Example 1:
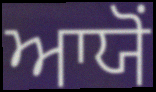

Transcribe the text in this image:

ਆਯੋਂ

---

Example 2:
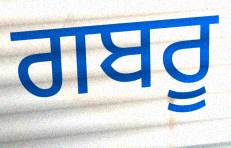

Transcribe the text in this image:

ਗਬਰੂ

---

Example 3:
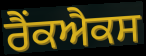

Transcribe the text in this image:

ਰੈਂਕਐਕਸ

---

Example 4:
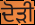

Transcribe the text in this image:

ਦੋੜੀ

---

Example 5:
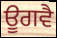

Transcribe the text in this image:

ਊਗਵੈ